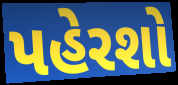
પહેરશો